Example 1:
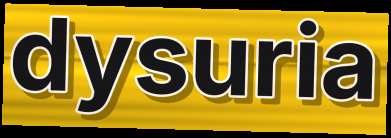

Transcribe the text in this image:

dysuria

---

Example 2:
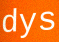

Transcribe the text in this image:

dys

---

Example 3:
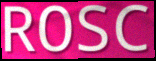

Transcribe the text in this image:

ROSC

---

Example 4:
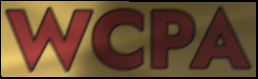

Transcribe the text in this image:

WCPA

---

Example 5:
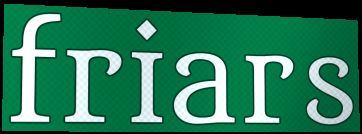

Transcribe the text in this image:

friars